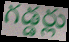
గడ్డర్లు